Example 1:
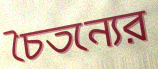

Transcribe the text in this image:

চৈতন্যের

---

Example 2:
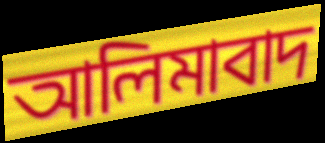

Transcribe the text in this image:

আলিমাবাদ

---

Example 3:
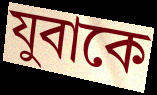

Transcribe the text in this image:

যুবাকে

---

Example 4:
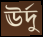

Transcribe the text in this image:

ঊর্দু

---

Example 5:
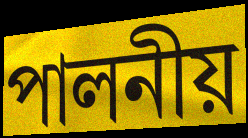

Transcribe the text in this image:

পালনীয়